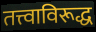
तत्त्वाविरूद्ध